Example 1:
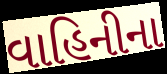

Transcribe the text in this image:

વાહિનીના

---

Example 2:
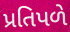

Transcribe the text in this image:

પ્રતિપળે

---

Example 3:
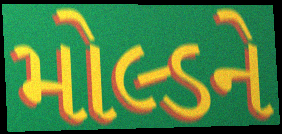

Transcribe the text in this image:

મોલ્ડને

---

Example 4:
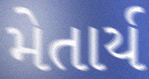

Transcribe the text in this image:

મેતાર્ય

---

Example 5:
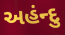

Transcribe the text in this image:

અહંન્દુ